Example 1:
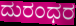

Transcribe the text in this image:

ದುರಂಧರ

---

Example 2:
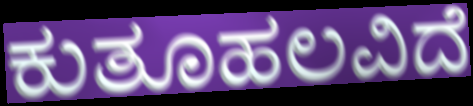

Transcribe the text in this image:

ಕುತೂಹಲವಿದೆ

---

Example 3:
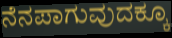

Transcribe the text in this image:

ನೆನಪಾಗುವುದಕ್ಕೂ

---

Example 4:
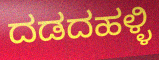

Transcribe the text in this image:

ದಡದಹಳ್ಳಿ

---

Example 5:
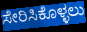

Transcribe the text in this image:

ಸೇರಿಸಿಕೊಳ್ಳಲು